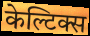
केल्टिक्स